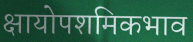
क्षायोपशमिकभाव